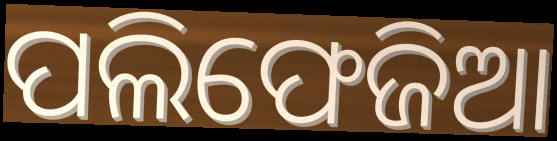
ପଲିଫେଜିଆ